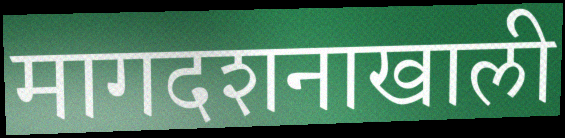
मागदशनाखाली